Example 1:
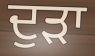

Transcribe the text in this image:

ਦੁੜਾ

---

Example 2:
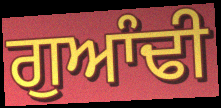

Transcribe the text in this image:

ਗੁਆੰਢੀ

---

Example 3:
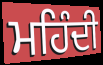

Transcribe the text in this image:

ਮਹਿੰਦੀ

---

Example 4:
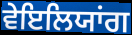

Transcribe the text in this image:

ਵੇਇਲਿਯਾਂਗ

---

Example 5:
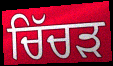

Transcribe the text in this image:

ਚਿੱਚੜ